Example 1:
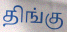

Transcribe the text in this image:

திங்கு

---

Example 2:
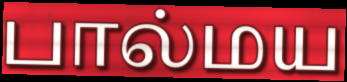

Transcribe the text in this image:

பால்மய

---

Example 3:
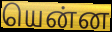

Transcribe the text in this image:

யென்ன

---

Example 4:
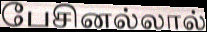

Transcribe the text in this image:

பேசினல்லால்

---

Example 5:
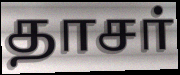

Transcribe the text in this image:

தாசர்